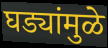
घड्यांमुळे